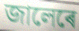
জালেৰে